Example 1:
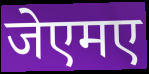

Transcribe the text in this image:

जेएमए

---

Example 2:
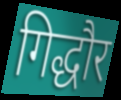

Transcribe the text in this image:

गिद्धौर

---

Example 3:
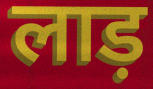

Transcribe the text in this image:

लाड़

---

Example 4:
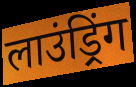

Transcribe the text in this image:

लाउंड्रिंग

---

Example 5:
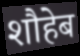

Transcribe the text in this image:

शौहेब